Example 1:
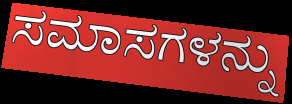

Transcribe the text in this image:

ಸಮಾಸಗಳನ್ನು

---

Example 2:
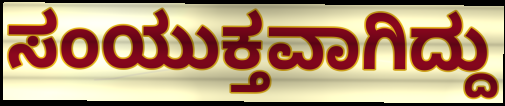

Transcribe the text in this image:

ಸಂಯುಕ್ತವಾಗಿದ್ದು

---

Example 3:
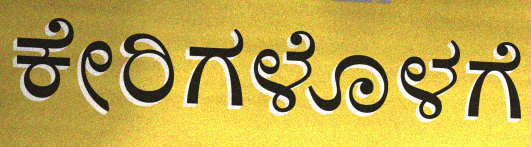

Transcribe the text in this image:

ಕೇರಿಗಳೊಳಗೆ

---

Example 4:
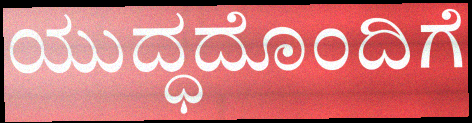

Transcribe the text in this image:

ಯುದ್ಧದೊಂದಿಗೆ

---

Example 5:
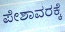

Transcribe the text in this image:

ಪೇಶಾವರಕ್ಕೆ